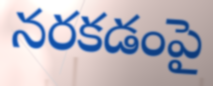
నరకడంపై